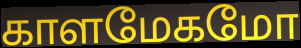
காளமேகமோ